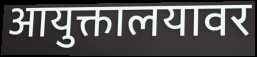
आयुक्तालयावर